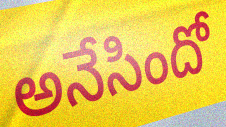
అనేసిందో